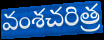
వంశచరిత్ర